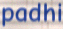
padhi